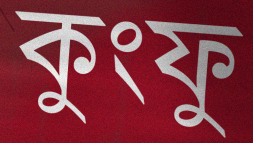
কুংফু